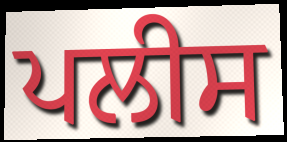
ਪਲੀਸ